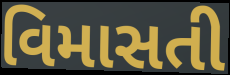
વિમાસતી